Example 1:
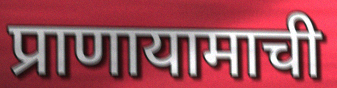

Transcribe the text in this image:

प्राणायामाची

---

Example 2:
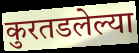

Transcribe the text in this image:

कुरतडलेल्या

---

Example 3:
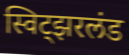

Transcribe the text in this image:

स्विट्झरलंड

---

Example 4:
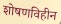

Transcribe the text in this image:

शोषणविहीन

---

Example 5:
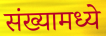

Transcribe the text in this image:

संख्यामध्ये